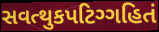
સવત્થુકપટિગ્ગહિતં